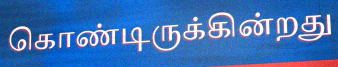
கொண்டிருக்கின்றது